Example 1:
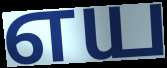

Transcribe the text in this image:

எய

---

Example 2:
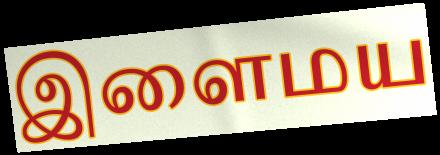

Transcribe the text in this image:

இளைமய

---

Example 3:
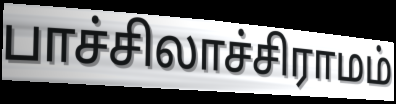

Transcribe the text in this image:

பாச்சிலாச்சிராமம்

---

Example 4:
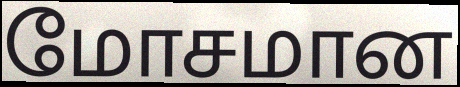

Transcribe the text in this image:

மோசமான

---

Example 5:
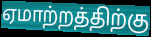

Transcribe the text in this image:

ஏமாற்றத்திற்கு